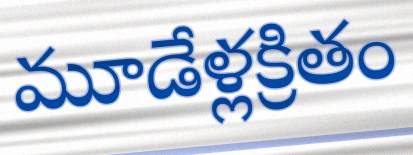
మూడేళ్లక్రితం